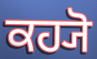
ਕਹ੍ਯੋ